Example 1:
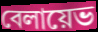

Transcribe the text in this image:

বেলায়েভ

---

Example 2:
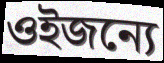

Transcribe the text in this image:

ওইজন্যে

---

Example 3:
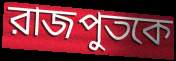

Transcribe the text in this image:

রাজপুতকে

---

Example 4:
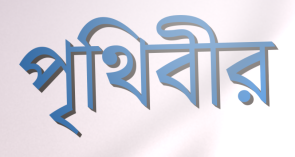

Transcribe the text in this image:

পৃথিবীর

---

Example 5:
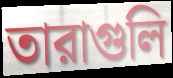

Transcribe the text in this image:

তারাগুলি